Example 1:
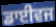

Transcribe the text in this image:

ਡਾਈਵਜ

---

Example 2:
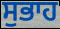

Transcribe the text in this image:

ਸੁਭਾਹ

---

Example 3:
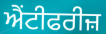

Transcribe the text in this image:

ਐਂਟੀਫਰੀਜ਼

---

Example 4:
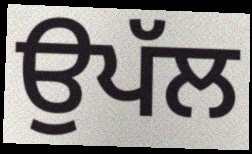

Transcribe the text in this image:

ਉਪੱਲ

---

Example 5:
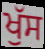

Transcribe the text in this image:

ਖੁੱਸ